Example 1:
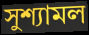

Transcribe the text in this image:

সুশ্যামল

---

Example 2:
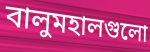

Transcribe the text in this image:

বালুমহালগুলো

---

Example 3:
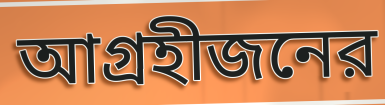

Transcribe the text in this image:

আগ্রহীজনের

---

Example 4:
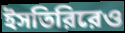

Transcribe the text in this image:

ইসতিরিরেও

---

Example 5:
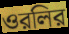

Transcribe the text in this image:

ওরলির